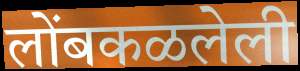
लोंबकळलेली